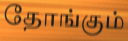
தோங்கும்